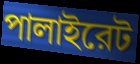
পালাইরেট